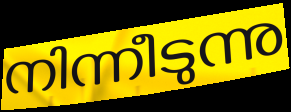
നിന്നീടുന്നു